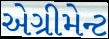
એગ્રીમેન્ટ